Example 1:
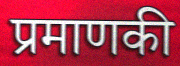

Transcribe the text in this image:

प्रमाणकी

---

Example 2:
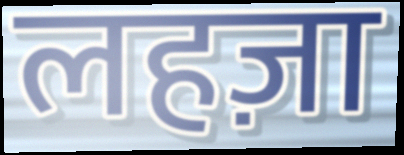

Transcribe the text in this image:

लहज़ा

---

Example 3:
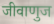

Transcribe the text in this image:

जीवाणुज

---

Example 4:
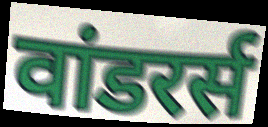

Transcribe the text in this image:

वांडरर्स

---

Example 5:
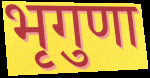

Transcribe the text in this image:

भृगुणा